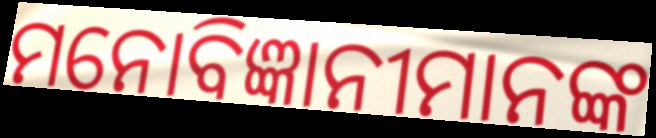
ମନୋବିଜ୍ଞାନୀମାନଙ୍କ